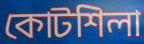
কোটশিলা